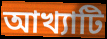
আখ্যাটি